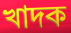
খাদক